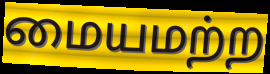
மையமற்ற